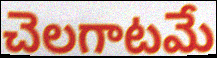
చెలగాటమే